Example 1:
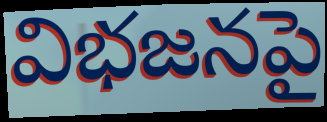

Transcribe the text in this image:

విభజనపై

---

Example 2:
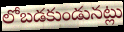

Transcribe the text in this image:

లోబడకుండునట్లు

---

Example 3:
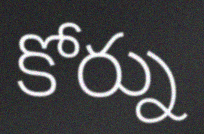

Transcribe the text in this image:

కోర్ను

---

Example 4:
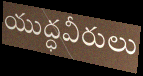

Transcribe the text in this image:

యుద్ధవీరులు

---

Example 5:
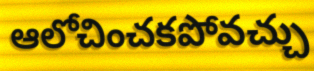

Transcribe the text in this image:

ఆలోచించకపోవచ్చు